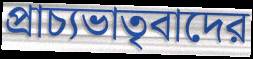
প্রাচ্যভাতৃবাদের